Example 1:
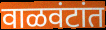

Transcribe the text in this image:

वाळवंटांत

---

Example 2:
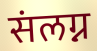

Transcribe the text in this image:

संलग्न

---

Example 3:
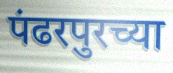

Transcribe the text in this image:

पंढरपुरच्या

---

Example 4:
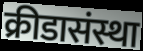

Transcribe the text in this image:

क्रीडासंस्था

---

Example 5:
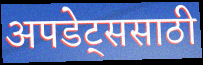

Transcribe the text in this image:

अपडेट्ससाठी